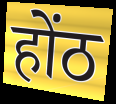
होंठ